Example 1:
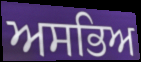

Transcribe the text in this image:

ਅਸਭਿਅ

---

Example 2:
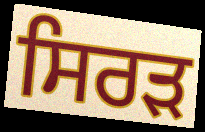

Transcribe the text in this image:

ਸਿਰਡ਼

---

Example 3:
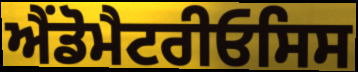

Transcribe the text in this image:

ਐਂਡੋਮੈਟਰੀਓਸਿਸ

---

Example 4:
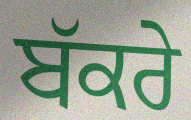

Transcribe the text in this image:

ਬੱਕਰੇ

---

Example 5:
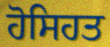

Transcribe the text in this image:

ਹੋਸਿਹਤ